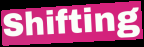
Shifting